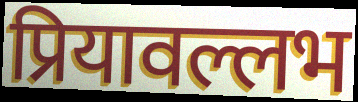
प्रियावल्लभ